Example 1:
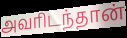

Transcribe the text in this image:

அவரிடந்தான்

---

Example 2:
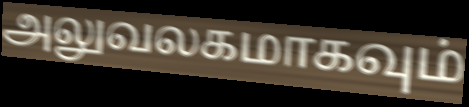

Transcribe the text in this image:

அலுவலகமாகவும்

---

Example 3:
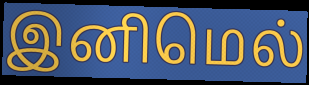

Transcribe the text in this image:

இனிமெல்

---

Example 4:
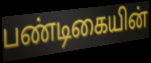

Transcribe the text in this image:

பண்டிகையின்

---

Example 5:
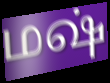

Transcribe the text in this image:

மஷ்